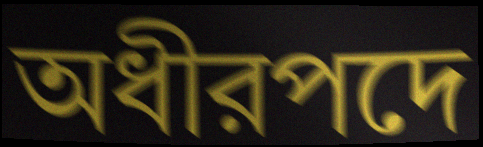
অধীরপদে